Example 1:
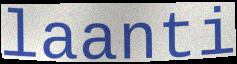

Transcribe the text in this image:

laanti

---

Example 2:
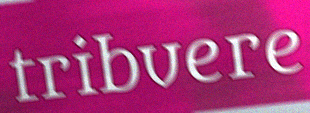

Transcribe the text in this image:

tribuere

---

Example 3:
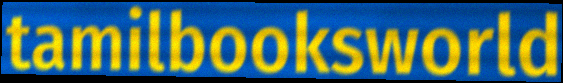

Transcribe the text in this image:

tamilbooksworld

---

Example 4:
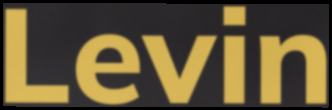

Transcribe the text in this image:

Levin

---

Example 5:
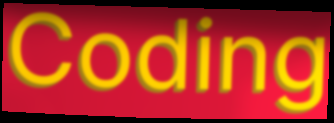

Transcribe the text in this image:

Coding